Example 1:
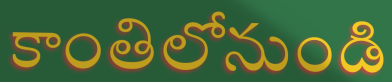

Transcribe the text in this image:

కాంతిలోనుండి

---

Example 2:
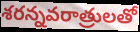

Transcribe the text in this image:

శరన్నవరాత్రులతో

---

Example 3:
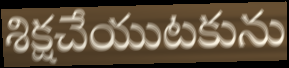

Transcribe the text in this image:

శిక్షచేయుటకును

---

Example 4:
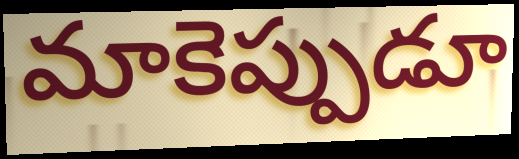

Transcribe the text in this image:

మాకెప్పుడూ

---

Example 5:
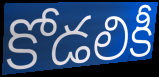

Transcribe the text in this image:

కోడలికీ